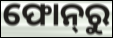
ଫୋନ୍‌ରୁ